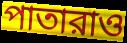
পাতারাও